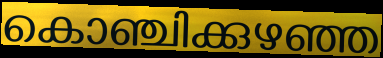
കൊഞ്ചിക്കുഴഞ്ഞ